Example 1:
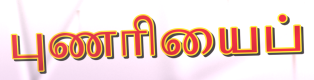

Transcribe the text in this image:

புணரியைப்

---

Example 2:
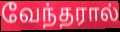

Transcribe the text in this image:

வேந்தரால்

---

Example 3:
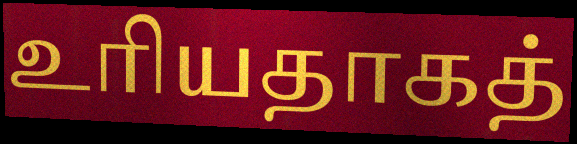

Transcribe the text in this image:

உரியதாகத்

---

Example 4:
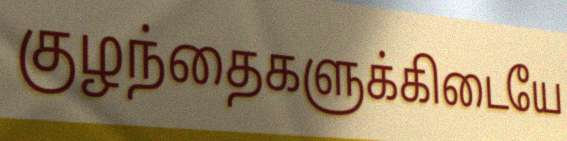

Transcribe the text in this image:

குழந்தைகளுக்கிடையே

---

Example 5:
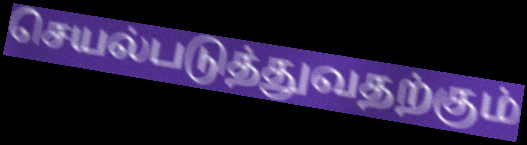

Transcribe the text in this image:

செயல்படுத்துவதற்கும்